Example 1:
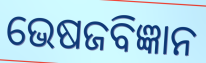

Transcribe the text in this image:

ଭେଷଜବିଜ୍ଞାନ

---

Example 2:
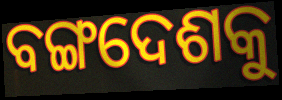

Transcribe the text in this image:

ବଙ୍ଗଦେଶକୁ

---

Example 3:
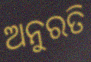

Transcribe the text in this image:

ଅନୁରତି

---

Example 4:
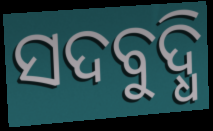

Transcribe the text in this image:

ସଦବୁଦ୍ଧି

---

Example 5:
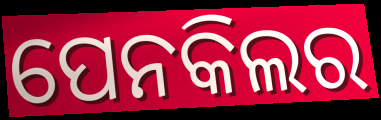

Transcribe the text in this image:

ପେନକିଲର